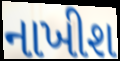
નાખીશ